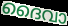
ദൈവാ